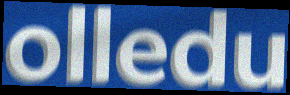
olledu